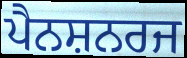
ਪੈਨਸ਼ਨਰਜ